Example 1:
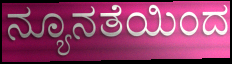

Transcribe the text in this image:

ನ್ಯೂನತೆಯಿಂದ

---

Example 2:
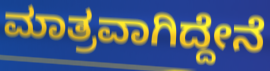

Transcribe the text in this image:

ಮಾತ್ರವಾಗಿದ್ದೇನೆ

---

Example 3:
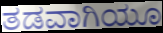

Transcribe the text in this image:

ತಡವಾಗಿಯೂ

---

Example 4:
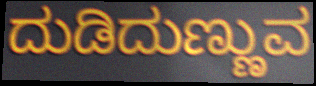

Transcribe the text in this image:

ದುಡಿದುಣ್ಣುವ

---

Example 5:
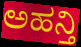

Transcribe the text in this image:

ಅಹನ್ತಿ